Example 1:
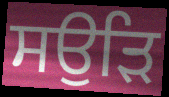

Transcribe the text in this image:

ਸਉੜਿ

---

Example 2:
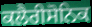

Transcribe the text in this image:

ਕਲੈਰੀਸੋਨਿਕ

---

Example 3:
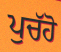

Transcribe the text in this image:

ਪੁਚੱਹੋ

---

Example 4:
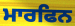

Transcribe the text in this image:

ਮਾਰਫਿਨ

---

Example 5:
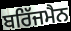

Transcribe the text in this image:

ਬਰਿੱਜਮੈਨ